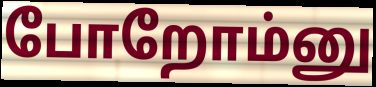
போறோம்னு